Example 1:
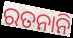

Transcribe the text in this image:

ରତନାନି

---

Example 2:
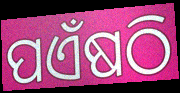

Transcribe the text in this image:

ପଏଁଷଠି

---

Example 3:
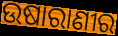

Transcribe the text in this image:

ଉଷାରାଣୀର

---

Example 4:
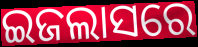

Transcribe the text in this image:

ଇଜଲାସରେ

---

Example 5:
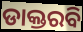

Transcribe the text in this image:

ଡାକ୍ତରବି